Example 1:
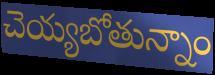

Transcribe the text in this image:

చెయ్యబోతున్నాం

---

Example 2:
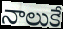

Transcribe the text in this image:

నాలుకే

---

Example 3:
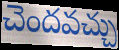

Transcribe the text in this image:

చెందవచ్చు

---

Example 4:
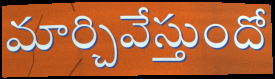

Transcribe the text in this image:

మార్చివేస్తుందో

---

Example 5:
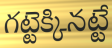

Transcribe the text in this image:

గట్టెక్కినట్టే